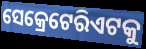
ସେକ୍ରେଟେରିଏଟକୁ